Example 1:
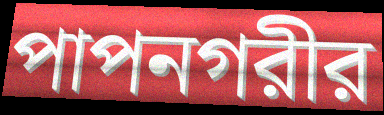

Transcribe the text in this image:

পাপনগরীর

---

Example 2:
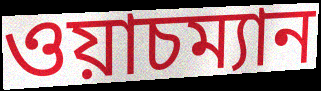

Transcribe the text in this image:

ওয়াচম্যান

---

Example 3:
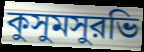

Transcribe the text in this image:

কুসুমসুরভি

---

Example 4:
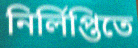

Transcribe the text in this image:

নির্লিপ্তিতে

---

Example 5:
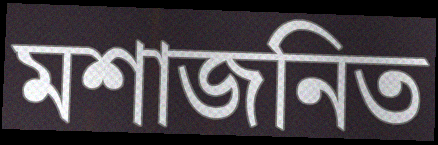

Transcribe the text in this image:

মশাজনিত